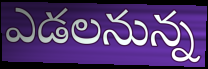
ఎడలనున్న